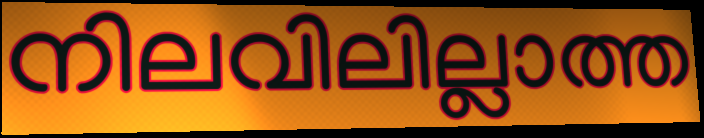
നിലവിലില്ലാത്ത